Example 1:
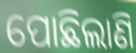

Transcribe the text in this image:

ପୋଛିଲାଣି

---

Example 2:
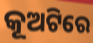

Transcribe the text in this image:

କୂଅଟିରେ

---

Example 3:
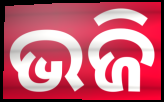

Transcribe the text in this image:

ଭଜି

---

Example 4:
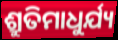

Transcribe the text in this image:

ଶ୍ରୁତିମାଧୁର୍ଯ୍ୟ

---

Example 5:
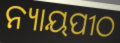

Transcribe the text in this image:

ନ୍ୟାୟପୀଠ